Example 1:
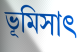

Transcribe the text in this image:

ভূমিসাৎ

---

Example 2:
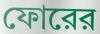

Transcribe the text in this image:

ফোরের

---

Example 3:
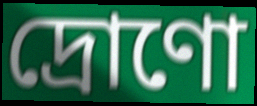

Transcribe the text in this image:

দ্রোণো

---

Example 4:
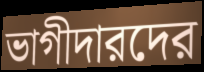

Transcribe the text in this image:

ভাগীদারদের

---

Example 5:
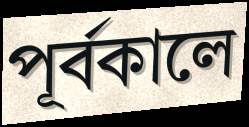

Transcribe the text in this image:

পূর্বকালে